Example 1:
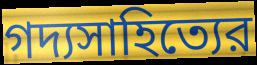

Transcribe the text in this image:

গদ্যসাহিত্যের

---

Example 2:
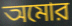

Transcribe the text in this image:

অমোর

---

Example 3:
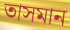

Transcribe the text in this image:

তাসমান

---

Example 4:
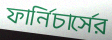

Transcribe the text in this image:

ফার্নিচার্সের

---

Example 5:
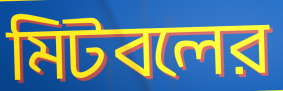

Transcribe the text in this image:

মিটবলের